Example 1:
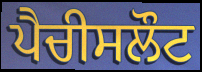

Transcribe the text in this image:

ਪੈਚੀਸਲੌਟ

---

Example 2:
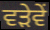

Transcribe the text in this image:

ਵੜੇਵੇਂ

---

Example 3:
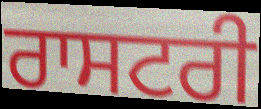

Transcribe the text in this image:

ਰਾਸਟਰੀ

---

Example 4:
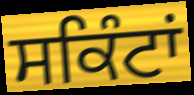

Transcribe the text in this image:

ਸਕਿੰਟਾਂ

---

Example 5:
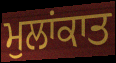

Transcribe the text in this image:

ਮੁਲਾਂਕਾਤ